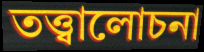
তত্ত্বালোচনা